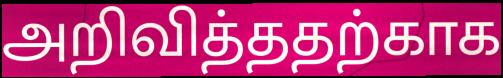
அறிவித்ததற்காக